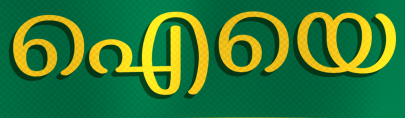
ഐയെ